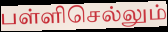
பள்ளிசெல்லும்